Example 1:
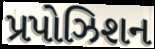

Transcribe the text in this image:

પ્રપોઝિશન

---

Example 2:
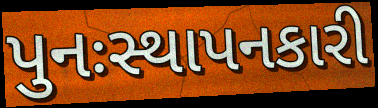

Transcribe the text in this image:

પુનઃસ્થાપનકારી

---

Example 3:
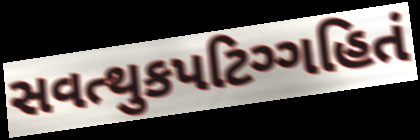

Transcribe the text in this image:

સવત્થુકપટિગ્ગહિતં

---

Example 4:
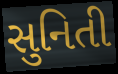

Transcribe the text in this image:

સુનિતી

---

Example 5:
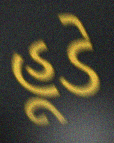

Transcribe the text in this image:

હૂડે